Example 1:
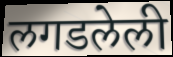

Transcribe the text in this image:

लगडलेली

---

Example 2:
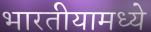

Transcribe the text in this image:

भारतीयामध्ये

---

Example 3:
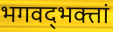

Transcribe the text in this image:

भगवद्भक्तां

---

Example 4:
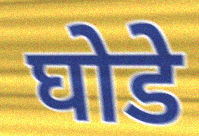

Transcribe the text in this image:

घोडे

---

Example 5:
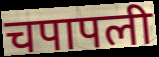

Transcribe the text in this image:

चपापली